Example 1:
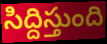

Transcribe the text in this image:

సిద్దిస్తుంది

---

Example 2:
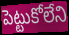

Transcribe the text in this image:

పెట్టుకోలేని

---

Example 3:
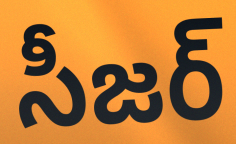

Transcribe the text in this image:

సీజర్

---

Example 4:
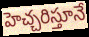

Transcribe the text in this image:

హెచ్చరిస్తూనే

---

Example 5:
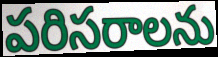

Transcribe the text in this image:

పరిసరాలను